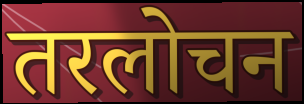
तरलोचन